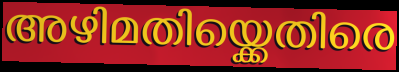
അഴിമതിയ്ക്കെതിരെ